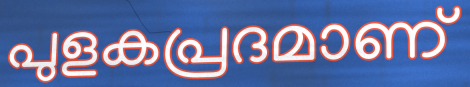
പുളകപ്രദമാണ്